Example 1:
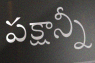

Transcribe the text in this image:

పక్షాన్నీ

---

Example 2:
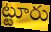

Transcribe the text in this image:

ట్టూరు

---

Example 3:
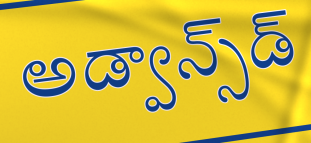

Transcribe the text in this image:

అడ్వాన్స్‌డ్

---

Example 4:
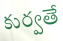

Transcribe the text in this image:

కుర్వతే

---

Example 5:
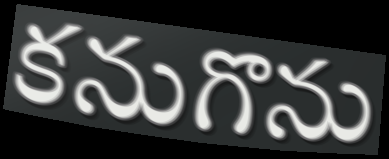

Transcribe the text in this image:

కనుగొను